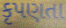
કૃપણતા